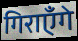
गिराएँगे